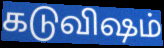
கடுவிஷம்